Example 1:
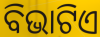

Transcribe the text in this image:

ବିଭାଟିଏ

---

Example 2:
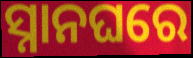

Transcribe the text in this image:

ସ୍ନାନଘରେ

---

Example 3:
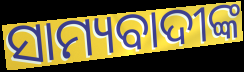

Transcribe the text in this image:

ସାମ୍ୟବାଦୀଙ୍କ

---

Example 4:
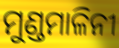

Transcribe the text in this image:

ମୁଣ୍ଡମାଳିନୀ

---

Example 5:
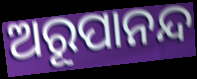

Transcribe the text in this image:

ଅରୂପାନନ୍ଦ